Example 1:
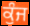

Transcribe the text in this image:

ਕੁੰਜ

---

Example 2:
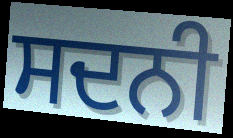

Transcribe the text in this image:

ਸਦਨੀ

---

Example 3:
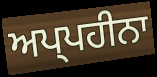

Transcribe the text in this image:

ਅਪ੍ਪਹੀਨਾ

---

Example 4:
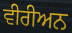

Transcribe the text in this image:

ਵੀਰੀਅਨ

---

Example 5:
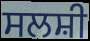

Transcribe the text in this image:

ਸਲਸ਼ੀ